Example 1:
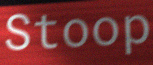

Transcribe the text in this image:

Stoop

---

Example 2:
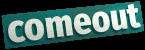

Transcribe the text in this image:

comeout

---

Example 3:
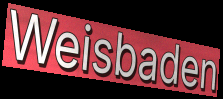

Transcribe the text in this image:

Weisbaden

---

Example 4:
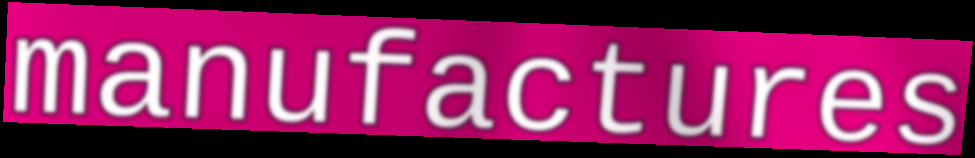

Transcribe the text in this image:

manufactures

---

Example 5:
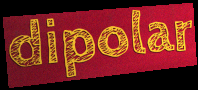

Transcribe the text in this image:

dipolar